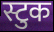
स्टुक